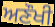
ਅਣੌਖੀ